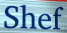
Shef